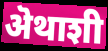
ऄथाशी